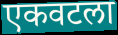
एकवटला